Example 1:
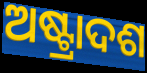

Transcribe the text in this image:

ଅଷ୍ଟ୍ରାଦଶ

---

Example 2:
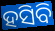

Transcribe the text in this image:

ହସିବି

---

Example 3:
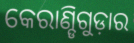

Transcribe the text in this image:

କେରାଣ୍ଡିଗୁଡ଼ାର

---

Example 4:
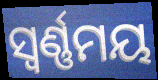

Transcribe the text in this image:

ସ୍ଵର୍ଣ୍ଣମୟ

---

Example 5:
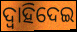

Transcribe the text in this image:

ଦ୍ୱାହିଦେଇ